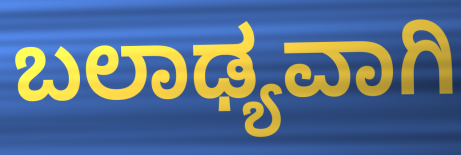
ಬಲಾಢ್ಯವಾಗಿ